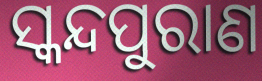
ସ୍କନ୍ଦପୁରାଣ